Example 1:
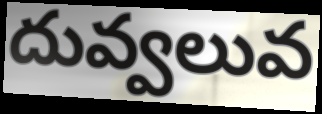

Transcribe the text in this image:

దువ్వలువ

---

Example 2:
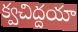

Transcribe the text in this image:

క్వచిద్దయా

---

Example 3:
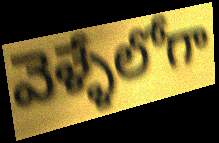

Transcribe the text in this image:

వెళ్ళేలోగా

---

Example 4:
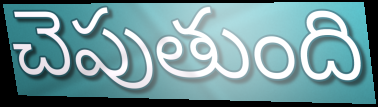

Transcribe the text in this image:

చెపుతుంది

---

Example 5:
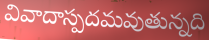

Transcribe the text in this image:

వివాదాస్పదమవుతున్నది